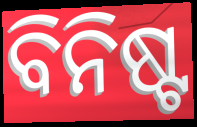
ବିନିଷ୍ଟ